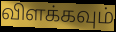
விளக்கவும்